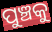
ପୁଞ୍ଚକୁ